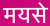
मयसे